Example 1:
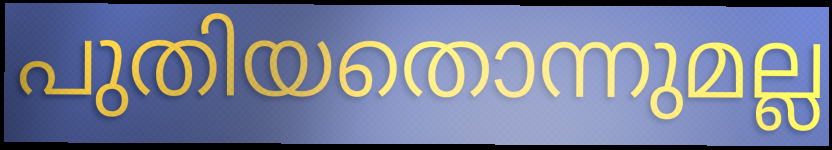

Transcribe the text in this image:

പുതിയതൊന്നുമല്ല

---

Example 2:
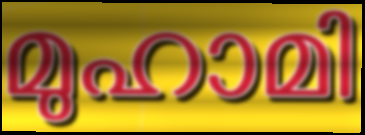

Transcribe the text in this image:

മുഹാമി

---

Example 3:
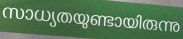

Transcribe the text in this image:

സാധ്യതയുണ്ടായിരുന്നു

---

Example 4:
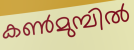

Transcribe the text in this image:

കൺമുമ്പിൽ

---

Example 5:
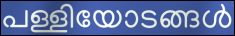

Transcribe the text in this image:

പള്ളിയോടങ്ങൾ